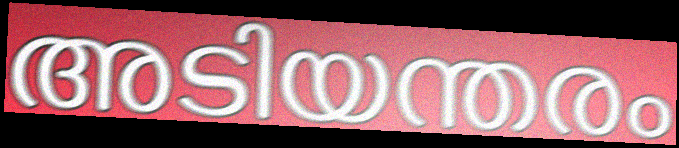
അടിയന്തരം